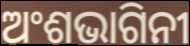
ଅଂଶଭାଗିନୀ